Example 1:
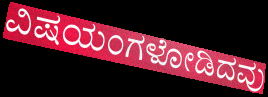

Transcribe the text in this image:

ವಿಷಯಂಗಳೋಡಿದವು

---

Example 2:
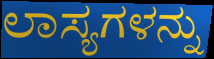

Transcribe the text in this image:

ಲಾಸ್ಯಗಳನ್ನು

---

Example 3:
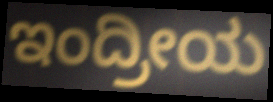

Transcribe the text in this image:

ಇಂದ್ರೀಯ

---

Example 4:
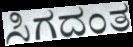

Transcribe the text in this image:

ಸಿಗದಂತ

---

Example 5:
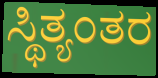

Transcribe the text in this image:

ಸ್ಥಿತ್ಯಂತರ